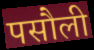
पसौली